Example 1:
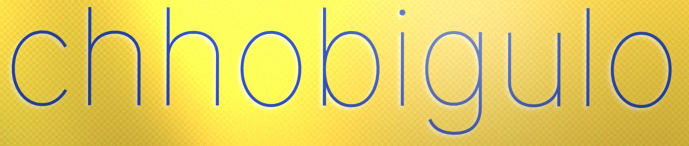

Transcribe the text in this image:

chhobigulo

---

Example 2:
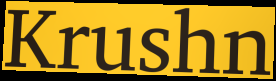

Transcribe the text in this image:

Krushn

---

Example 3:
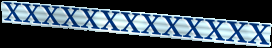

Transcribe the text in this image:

xxxxxxxxxxxxx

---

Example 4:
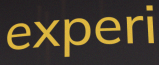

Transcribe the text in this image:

experi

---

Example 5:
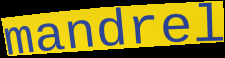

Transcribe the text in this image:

mandrel